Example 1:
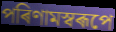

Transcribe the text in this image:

পৰিণামস্বৰূপে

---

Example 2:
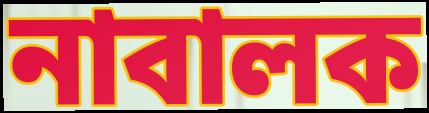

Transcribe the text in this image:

নাবালক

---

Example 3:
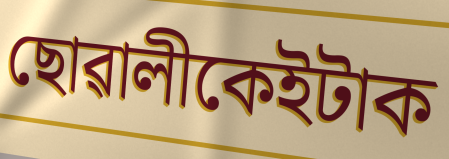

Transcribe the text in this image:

ছোৱালীকেইটাক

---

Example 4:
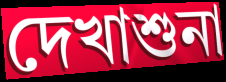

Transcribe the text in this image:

দেখাশুনা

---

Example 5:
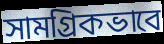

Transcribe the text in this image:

সামগ্ৰিকভাবে